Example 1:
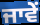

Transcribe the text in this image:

ਜਾਵੇਂ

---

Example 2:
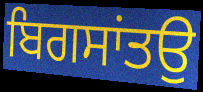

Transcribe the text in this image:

ਬਿਗਸਾਂਤਉ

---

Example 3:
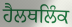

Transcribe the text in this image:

ਹੈਲਥਲਿੰਕ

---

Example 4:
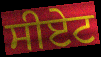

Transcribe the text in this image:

ਸੀਏਟ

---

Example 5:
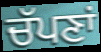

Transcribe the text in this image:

ਚੱਪਣਾਂ